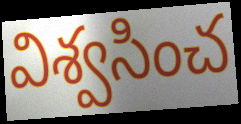
విశ్వసించ